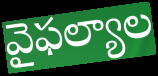
వైఫల్యాల